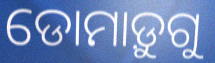
ଡୋମାଡ଼ୁଗୁ